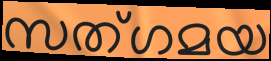
സത്ഗമയ